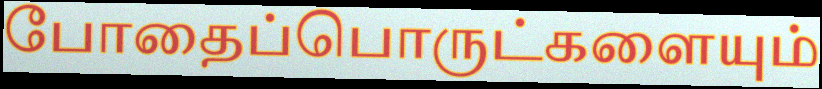
போதைப்பொருட்களையும்